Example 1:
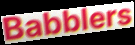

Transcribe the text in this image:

Babblers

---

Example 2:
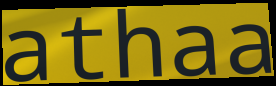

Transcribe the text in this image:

athaa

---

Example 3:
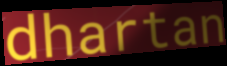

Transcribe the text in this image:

dhartan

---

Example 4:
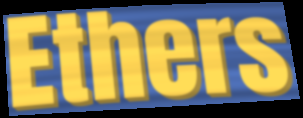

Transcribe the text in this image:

Ethers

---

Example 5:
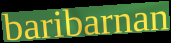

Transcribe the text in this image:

baribarnan